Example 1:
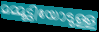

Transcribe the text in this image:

മമ്മൂട്ടിയോടുള്ള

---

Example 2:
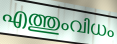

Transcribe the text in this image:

എത്തുംവിധം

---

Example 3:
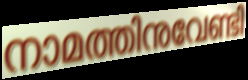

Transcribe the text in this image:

നാമത്തിനുവേണ്ടി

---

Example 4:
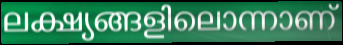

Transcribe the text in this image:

ലക്ഷ്യങ്ങളിലൊന്നാണ്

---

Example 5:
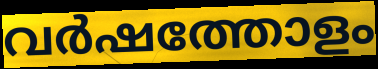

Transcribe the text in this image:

വർഷത്തോളം